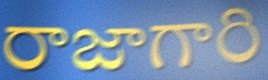
రాజాగారి